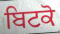
ਬਿਟਕੋ